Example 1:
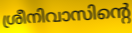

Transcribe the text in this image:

ശ്രീനിവാസിന്റെ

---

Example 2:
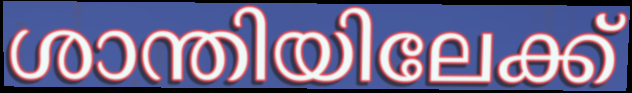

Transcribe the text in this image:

ശാന്തിയിലേക്ക്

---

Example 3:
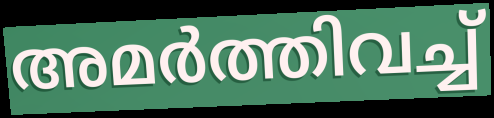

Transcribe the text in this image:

അമർത്തിവച്ച്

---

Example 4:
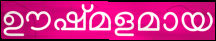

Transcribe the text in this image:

ഊഷ്‌മളമായ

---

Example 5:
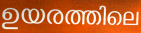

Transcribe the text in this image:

ഉയരത്തിലെ